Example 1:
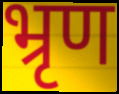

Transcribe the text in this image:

भ्रृण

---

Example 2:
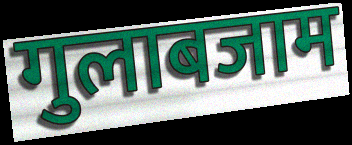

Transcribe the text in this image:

गुलाबजाम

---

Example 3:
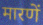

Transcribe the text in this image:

मारणें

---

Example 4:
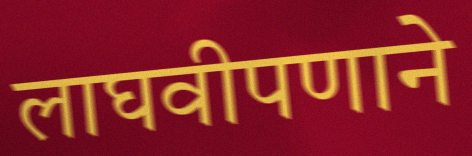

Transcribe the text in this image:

लाघवीपणाने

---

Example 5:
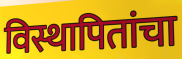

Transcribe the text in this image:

विस्थापितांचा